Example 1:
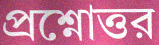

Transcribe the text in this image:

প্রশ্নোত্তর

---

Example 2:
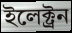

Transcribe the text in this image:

ইলেক্ট্রন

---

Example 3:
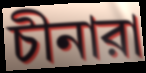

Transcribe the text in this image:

চীনারা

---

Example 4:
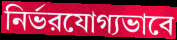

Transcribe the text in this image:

নির্ভরযোগ্যভাবে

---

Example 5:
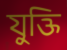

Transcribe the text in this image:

যুক্তি